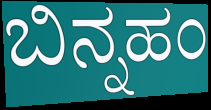
ಬಿನ್ನಹಂ